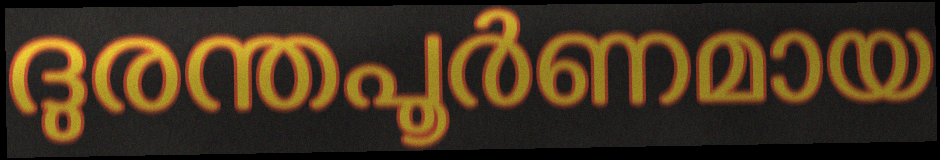
ദുരന്തപൂർണമായ